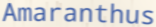
Amaranthus